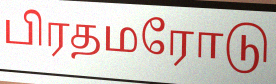
பிரதமரோடு